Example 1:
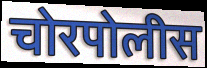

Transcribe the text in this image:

चोरपोलीस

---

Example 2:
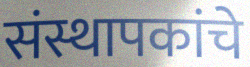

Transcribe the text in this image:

संस्थापकांचे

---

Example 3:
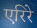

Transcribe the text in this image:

एरिरे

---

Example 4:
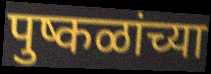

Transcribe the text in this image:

पुष्कळांच्या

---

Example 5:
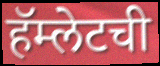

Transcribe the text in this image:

हॅम्लेटची